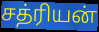
சத்ரியன்